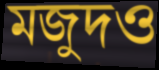
মজুদও